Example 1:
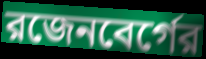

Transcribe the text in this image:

রজেনবের্গের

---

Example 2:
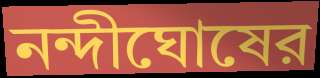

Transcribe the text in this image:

নন্দীঘোষের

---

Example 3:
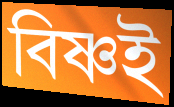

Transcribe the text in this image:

বিষ্ণই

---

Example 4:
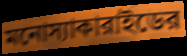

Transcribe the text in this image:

মনোস্যাকারাইডের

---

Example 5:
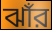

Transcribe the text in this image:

ঝাঁর